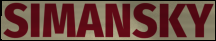
SIMANSKY